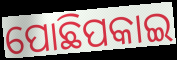
ପୋଛିପକାଇ